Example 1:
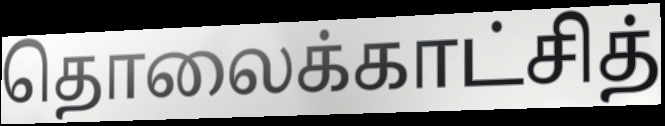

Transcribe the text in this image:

தொலைக்காட்சித்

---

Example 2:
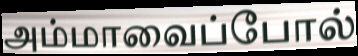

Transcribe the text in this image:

அம்மாவைப்போல்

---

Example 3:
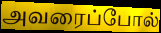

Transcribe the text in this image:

அவரைப்போல்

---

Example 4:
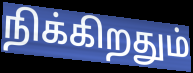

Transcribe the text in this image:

நிக்கிறதும்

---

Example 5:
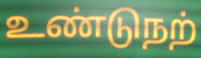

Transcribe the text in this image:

உண்டுநற்